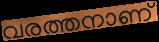
വരത്തനാണ്